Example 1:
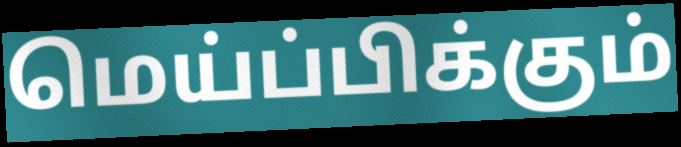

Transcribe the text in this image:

மெய்ப்பிக்கும்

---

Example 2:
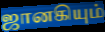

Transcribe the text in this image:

ஜானகியும்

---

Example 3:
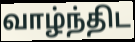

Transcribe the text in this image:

வாழ்ந்திட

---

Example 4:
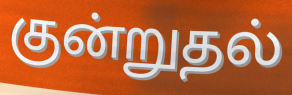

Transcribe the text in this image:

குன்றுதல்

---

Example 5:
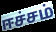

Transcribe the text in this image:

ஈச்சம்